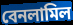
বেনলামিল